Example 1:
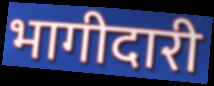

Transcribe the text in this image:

भागीदारी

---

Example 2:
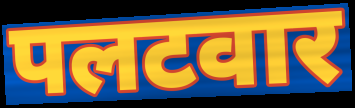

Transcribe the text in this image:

पलटवार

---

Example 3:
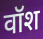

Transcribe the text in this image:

वॉश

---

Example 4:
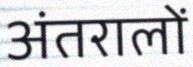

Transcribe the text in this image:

अंतरालों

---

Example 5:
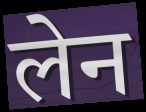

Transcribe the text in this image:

लेन